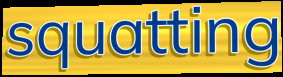
squatting